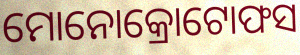
ମୋନୋକ୍ରୋଟୋଫସ